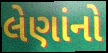
લેણાંનો